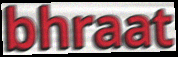
bhraat